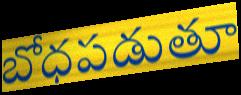
బోధపడుతూ